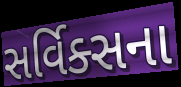
સર્વિક્સના